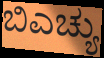
ಬಿಎಚ್ಯು